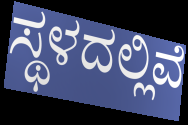
ಸ್ಥಳದಲ್ಲಿವೆ